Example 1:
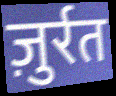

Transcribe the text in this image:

ज़ुर्रत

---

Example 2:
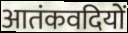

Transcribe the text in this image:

आतंकवदियों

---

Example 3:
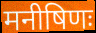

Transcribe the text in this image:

मनीषिणः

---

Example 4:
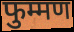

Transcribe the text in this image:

फुम्मण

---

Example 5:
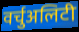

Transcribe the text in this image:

वर्चुअलिटी